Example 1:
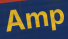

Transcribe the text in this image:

Amp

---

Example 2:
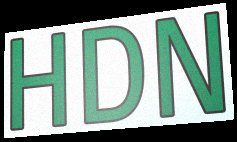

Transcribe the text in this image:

HDN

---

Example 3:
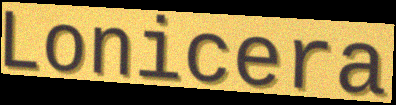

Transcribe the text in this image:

Lonicera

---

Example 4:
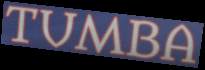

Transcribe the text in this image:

TUMBA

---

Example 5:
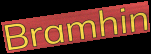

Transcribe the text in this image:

Bramhin